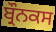
ਬ੍ਰੌਨਕਸ